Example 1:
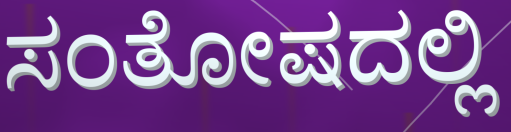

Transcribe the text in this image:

ಸಂತೋಷದಲ್ಲಿ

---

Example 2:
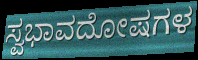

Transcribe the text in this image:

ಸ್ವಭಾವದೋಷಗಳ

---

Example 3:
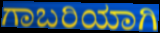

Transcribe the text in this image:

ಗಾಬರಿಯಾಗಿ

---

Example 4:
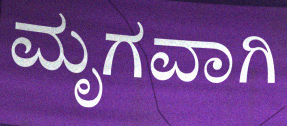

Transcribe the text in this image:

ಮೃಗವಾಗಿ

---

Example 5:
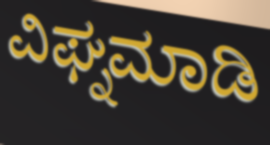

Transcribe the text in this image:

ವಿಘ್ನಮಾಡಿ